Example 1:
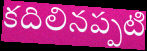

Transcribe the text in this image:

కదిలినప్పటి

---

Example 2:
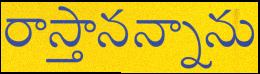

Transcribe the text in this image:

రాస్తానన్నాను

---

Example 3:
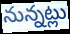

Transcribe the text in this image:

నున్నట్లు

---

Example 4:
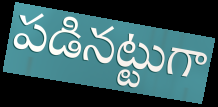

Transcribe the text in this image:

పడినట్టుగా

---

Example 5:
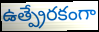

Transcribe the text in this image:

ఉత్ప్రేరకంగా